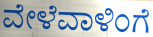
ವೇಳೆವಾಳಿಂಗೆ